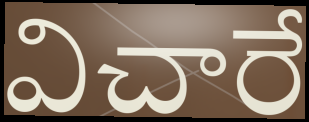
విచారే